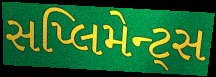
સપ્લિમેન્ટ્સ